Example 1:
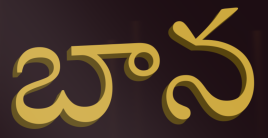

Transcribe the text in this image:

బాన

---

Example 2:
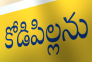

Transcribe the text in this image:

కోడిపిల్లను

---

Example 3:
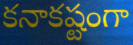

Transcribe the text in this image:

కనాకష్టంగా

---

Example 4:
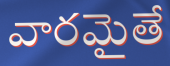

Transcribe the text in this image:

వారమైతే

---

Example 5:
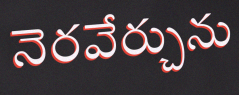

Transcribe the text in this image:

నెరవేర్చును